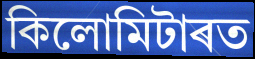
কিলোমিটাৰত